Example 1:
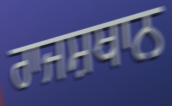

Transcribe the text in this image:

ਰਾਜਸ਼ਥਾਨ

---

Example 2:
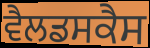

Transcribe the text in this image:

ਵੈਲਡਸਕੈਸ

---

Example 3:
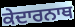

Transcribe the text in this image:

ਕੇਦਾਰਨਾਥ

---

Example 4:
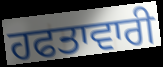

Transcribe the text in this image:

ਹਫਤਾਵਾਰੀ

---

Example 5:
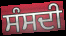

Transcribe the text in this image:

ਸੰਸਦੀ